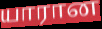
யாரான